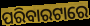
ପରିବାରଟାରେ